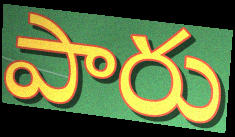
పారు